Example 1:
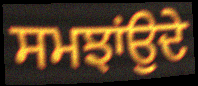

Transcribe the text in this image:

ਸਮਝਾਂਉਦੇ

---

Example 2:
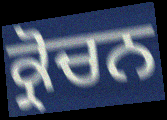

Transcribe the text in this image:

ਕ੍ਰੋਚਨ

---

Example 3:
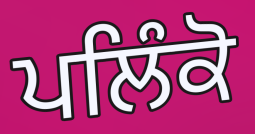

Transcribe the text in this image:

ਪਲਿੰਕੋ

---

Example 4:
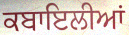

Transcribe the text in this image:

ਕਬਾਇਲੀਆਂ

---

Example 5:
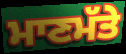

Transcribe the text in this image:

ਮਾਣਮੱਤੇ